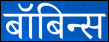
बॉबिन्स